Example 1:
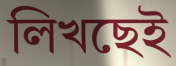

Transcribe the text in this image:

লিখছেই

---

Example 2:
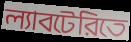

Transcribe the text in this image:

ল্যাবটেরিতে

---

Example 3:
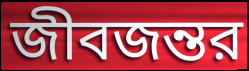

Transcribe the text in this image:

জীবজন্তর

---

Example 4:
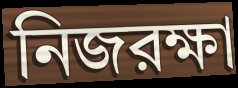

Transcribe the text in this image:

নিজরক্ষা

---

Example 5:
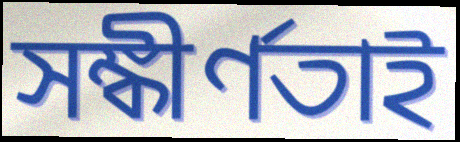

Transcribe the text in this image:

সঙ্কীর্ণতাই